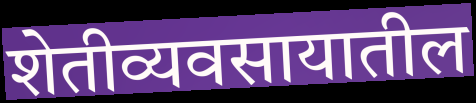
शेतीव्यवसायातील